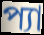
প্যা